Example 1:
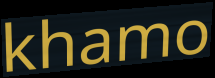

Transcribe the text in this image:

khamo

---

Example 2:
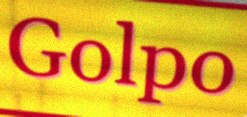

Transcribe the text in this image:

Golpo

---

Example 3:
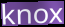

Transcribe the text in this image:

knox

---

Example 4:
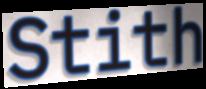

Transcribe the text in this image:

Stith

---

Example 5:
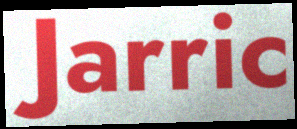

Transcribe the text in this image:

Jarric